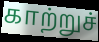
காற்றுச்